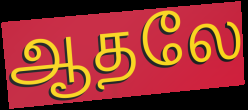
ஆதலே